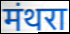
मंथरा